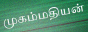
முகம்மதியன்